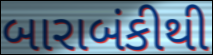
બારાબંકીથી